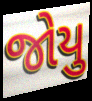
જોયુ